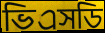
ভিএসডি